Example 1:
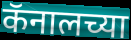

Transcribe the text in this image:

कॅनालच्या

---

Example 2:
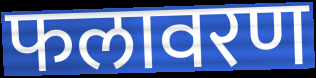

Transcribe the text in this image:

फलावरण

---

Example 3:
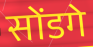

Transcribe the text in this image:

सोंडगे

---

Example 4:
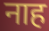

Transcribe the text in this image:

नाह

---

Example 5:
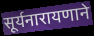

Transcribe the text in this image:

सूर्यनारायणाने